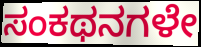
ಸಂಕಥನಗಳೇ